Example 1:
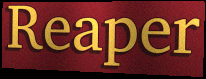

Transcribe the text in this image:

Reaper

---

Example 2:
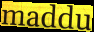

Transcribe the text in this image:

maddu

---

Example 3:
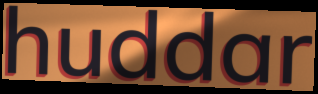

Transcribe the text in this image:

huddar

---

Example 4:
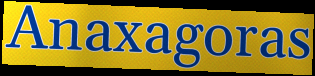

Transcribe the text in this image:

Anaxagoras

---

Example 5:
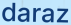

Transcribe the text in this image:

daraz